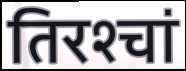
तिरश्चां